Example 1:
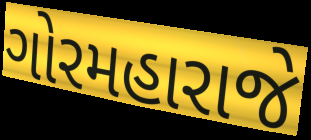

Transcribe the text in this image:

ગોરમહારાજે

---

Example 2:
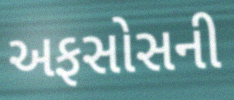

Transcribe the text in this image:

અફસોસની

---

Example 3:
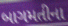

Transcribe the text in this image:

બાગમતીના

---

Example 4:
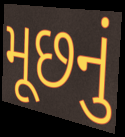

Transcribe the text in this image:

મૂછનું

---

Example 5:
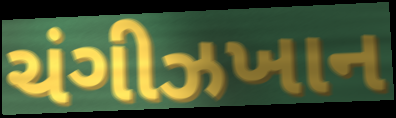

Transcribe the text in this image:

ચંગીઝખાન